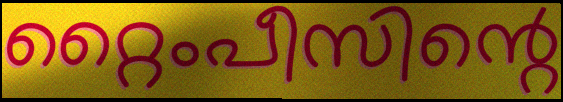
റ്റൈംപീസിന്റെ